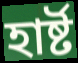
হাৰ্ষ্ট